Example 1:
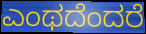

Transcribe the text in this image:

ಎಂಥದೆಂದರೆ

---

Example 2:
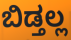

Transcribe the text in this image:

ಬಿಡ್ತಲ್ಲ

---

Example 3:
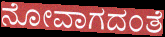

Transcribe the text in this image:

ನೋವಾಗದಂತೆ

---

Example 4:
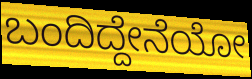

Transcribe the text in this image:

ಬಂದಿದ್ದೇನೆಯೋ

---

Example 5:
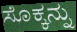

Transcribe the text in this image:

ಸೊಕ್ಕನ್ನು